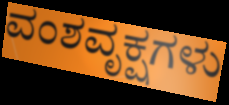
ವಂಶವೃಕ್ಷಗಳು